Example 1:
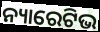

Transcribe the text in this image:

ନ୍ୟାରେଟିଭ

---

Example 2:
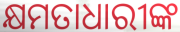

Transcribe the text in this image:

କ୍ଷମତାଧାରୀଙ୍କ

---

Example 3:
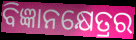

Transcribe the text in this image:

ବିଜ୍ଞାନକ୍ଷେତ୍ରର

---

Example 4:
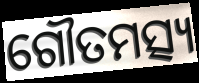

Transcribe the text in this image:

ଗୌତମତ୍ସ୍ୟ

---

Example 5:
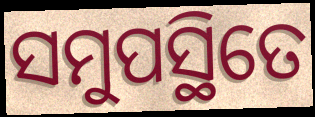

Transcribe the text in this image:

ସମୁପସ୍ଥିତେ